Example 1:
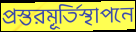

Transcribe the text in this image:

প্রস্তরমূর্তিস্থাপনে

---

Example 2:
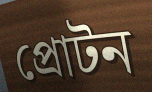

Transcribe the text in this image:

প্রোটন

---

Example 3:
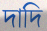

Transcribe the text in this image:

দাদি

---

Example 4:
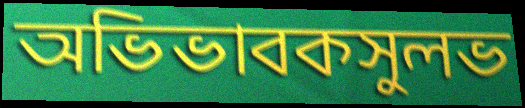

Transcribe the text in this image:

অভিভাবকসুলভ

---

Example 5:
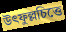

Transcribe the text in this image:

উৎফুল্লচিত্তে